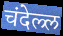
चंदेल्ल